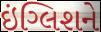
ઇંગ્લિશને